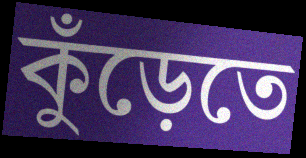
কুঁড়েতে